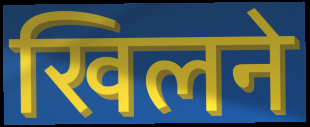
खिलने